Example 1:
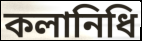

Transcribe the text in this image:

কলানিধি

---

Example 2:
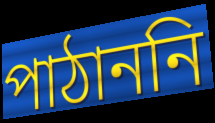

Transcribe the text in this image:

পাঠাননি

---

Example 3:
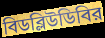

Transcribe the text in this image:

বিডব্লিউডিবির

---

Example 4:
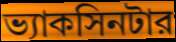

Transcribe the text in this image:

ভ্যাকসিনটার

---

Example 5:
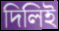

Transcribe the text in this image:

দিলিই